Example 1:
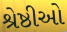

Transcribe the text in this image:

શ્રેષ્ઠીઓ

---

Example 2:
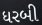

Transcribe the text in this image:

ધરબી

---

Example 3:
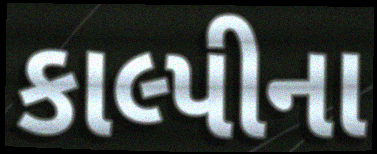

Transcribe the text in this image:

કાલ્પીના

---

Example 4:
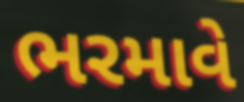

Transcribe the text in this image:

ભરમાવે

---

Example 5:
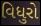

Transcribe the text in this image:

વિધુરો